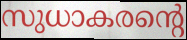
സുധാകരന്റെ